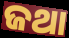
ଜଥା